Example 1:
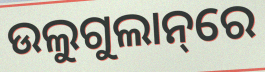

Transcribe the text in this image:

ଉଲୁଗୁଲାନ୍‌ରେ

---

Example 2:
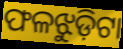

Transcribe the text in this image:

ଫଳଝୁଡ଼ିଟା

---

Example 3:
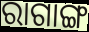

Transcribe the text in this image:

ରାଗାଙ୍ଗ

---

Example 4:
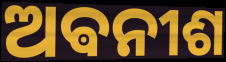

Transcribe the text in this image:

ଅଵନୀଶ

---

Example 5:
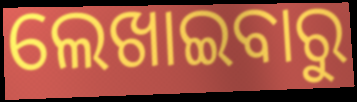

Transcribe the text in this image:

ଲେଖାଇବାରୁ